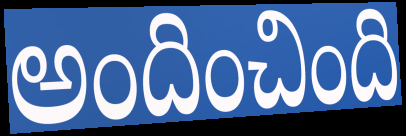
అందించింది